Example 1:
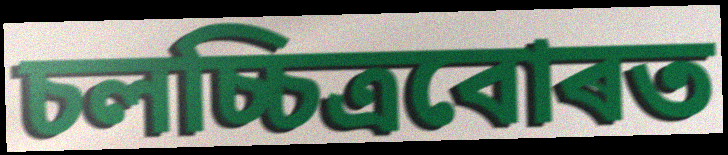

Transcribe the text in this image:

চলচ্চিত্ৰবোৰত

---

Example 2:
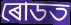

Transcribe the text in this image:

ৰোডত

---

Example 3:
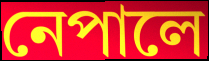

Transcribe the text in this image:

নেপালে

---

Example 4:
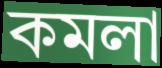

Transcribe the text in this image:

কমলা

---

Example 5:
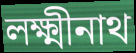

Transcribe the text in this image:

লক্ষ্মীনাথ